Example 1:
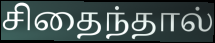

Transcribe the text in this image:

சிதைந்தால்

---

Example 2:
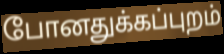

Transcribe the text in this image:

போனதுக்கப்புறம்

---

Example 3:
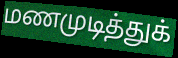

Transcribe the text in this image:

மணமுடித்துக்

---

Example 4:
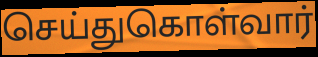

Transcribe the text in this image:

செய்துகொள்வார்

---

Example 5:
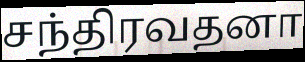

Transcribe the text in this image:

சந்திரவதனா